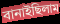
বানাইছিলাম